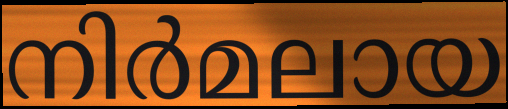
നിർമലായ